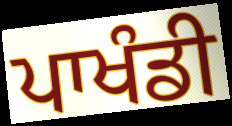
ਪਾਖੰਡੀ